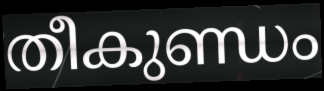
തീകുണ്ഡം